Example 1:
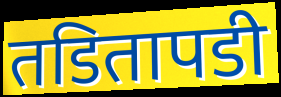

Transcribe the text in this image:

तडितापडी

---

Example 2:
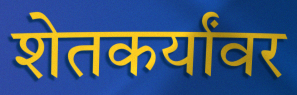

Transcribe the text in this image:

शेतकर्यांवर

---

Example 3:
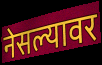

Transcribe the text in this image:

नेसल्यावर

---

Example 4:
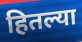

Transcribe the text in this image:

हितल्या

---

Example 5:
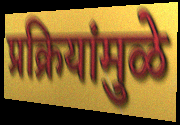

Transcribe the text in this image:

प्रक्रियांमुळे